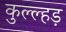
कुल्ल्हड़